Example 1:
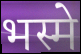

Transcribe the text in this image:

भस्मे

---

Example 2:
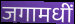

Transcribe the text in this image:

जगामधीं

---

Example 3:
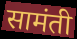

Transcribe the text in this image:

सामंती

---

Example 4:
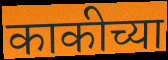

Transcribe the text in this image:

काकीच्या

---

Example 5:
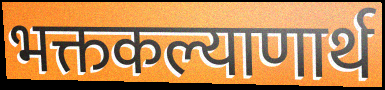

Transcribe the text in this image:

भक्तकल्याणार्थ